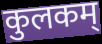
कुलकम्